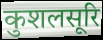
कुशलसूरि